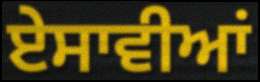
ਏਸਾਵੀਆਂ